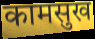
कामसुख